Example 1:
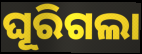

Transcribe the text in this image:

ଘୂରିଗଲା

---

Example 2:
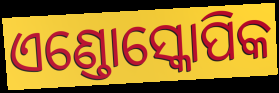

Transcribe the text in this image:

ଏଣ୍ଡୋସ୍କୋପିକ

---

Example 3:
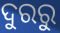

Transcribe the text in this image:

ଦୁରରୁ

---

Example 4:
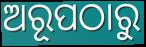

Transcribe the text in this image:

ଅରୂପଠାରୁ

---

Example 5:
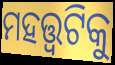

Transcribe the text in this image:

ମହତ୍ତ୍ୱଟିକୁ